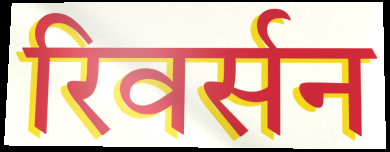
रिवर्सन